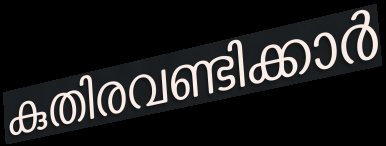
കുതിരവണ്ടിക്കാർ